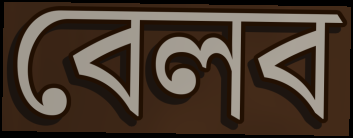
বেলব